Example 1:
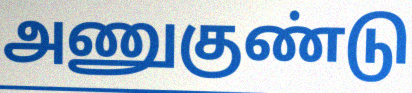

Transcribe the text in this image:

அணுகுண்டு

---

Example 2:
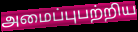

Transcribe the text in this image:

அமைப்புபற்றிய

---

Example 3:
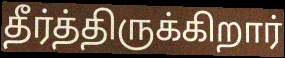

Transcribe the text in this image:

தீர்த்திருக்கிறார்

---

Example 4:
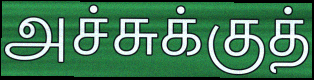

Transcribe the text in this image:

அச்சுக்குத்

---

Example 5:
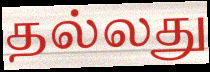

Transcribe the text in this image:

தல்லது